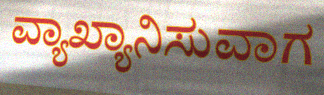
ವ್ಯಾಖ್ಯಾನಿಸುವಾಗ